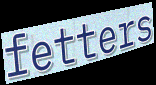
fetters